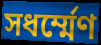
সধর্ম্মেণ